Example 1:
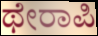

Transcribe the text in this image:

ಥೇರಾಪಿ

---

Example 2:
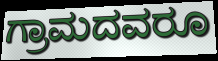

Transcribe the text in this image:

ಗ್ರಾಮದವರೂ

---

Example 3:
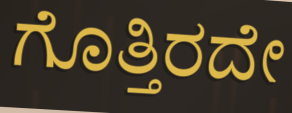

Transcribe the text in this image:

ಗೊತ್ತಿರದೇ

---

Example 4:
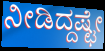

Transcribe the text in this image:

ನೀಡಿದ್ದಷ್ಟೇ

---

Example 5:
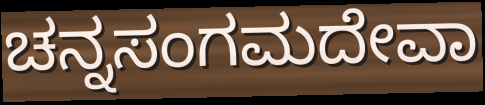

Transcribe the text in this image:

ಚನ್ನಸಂಗಮದೇವಾ